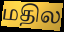
மதில